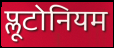
प्लूटोनियम